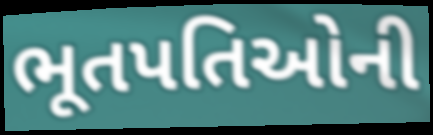
ભૂતપતિઓની